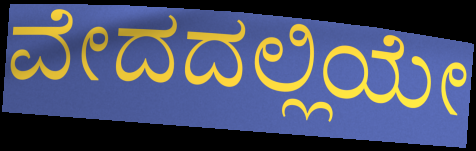
ವೇದದಲ್ಲಿಯೇ